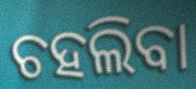
ଚହଲିବା